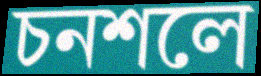
চনশলে